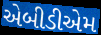
એબીડીએમ